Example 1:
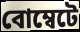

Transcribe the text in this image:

বোম্বেটে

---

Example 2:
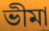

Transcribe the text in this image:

ভীমা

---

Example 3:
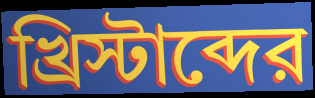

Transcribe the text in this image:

খ্রিস্টাব্দের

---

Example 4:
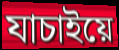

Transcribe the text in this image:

যাচাইয়ে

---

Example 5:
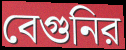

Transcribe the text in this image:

বেগুনির